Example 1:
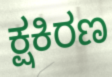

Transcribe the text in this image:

ಕ್ಷಕಿರಣ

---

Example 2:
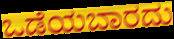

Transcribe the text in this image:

ಒಡೆಯಬಾರದು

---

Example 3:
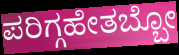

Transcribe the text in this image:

ಪರಿಗ್ಗಹೇತಬ್ಬೋ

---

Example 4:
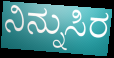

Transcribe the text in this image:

ನಿನ್ನುಸಿರ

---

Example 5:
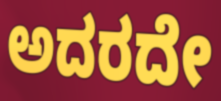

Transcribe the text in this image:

ಅದರದೇ